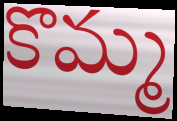
కొమ్మ